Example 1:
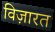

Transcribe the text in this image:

विज़ारत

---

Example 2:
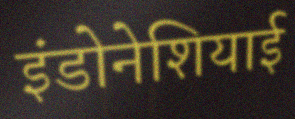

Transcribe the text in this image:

इंडोनेशियाई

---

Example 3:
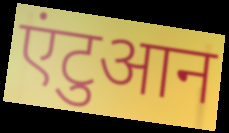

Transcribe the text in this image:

एंटुआन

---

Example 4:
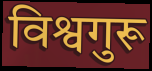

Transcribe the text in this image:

विश्वगुरू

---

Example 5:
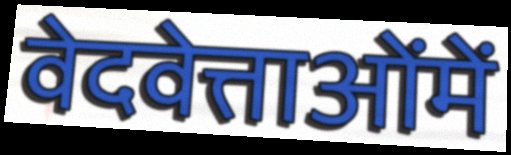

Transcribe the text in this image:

वेदवेत्ताओंमें